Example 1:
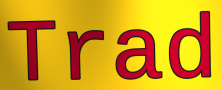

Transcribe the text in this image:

Trad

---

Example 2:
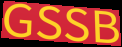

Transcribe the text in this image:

GSSB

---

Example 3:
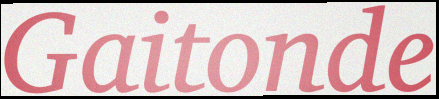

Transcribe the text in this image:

Gaitonde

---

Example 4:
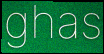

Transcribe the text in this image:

ghas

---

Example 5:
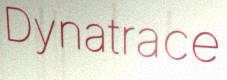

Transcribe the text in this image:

Dynatrace